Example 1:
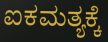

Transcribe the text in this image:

ಐಕಮತ್ಯಕ್ಕೆ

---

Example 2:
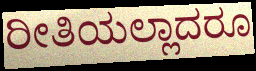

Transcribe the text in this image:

ರೀತಿಯಲ್ಲಾದರೂ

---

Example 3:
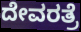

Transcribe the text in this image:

ದೇವರತ್ರೆ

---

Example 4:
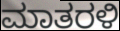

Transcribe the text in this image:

ಮಾತರಳಿ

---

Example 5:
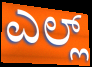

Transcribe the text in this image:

ಎಲ್ಲ್